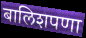
बालिशपणा